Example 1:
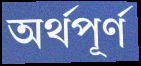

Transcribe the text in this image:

অর্থপূর্ণ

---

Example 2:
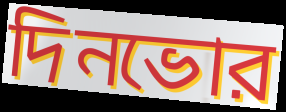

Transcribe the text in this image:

দিনভোর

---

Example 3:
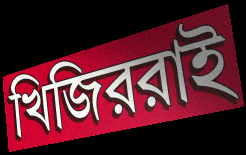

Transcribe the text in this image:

খিজিররাই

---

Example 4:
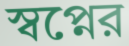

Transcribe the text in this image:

স্বপ্নের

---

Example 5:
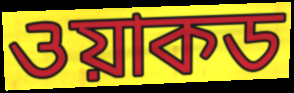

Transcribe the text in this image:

ওয়াকড